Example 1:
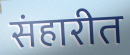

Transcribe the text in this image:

संहारीत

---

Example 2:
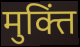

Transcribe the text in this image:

मुक्तिं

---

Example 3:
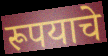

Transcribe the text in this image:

रूपयाचे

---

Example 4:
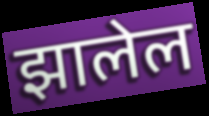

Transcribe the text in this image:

झालेल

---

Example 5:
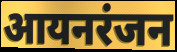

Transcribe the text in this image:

आयनरंजन